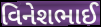
વિનેશભાઈ